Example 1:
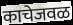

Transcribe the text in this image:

काचेजवळ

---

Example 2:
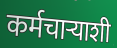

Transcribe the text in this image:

कर्मचाऱ्याशी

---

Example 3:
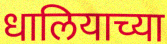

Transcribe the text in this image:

धालियाच्या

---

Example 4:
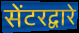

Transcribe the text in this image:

सेंटरद्वारे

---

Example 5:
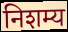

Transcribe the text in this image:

निशम्य